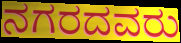
ನಗರದವರು